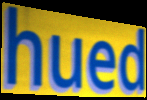
hued